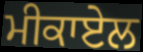
ਮੀਕਾਏਲ